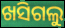
ଖସିଗଲୁ